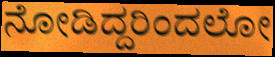
ನೋಡಿದ್ದರಿಂದಲೋ